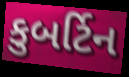
કુબર્ટિન